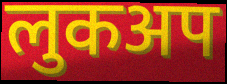
लुकअप